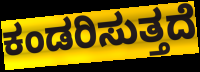
ಕಂಡರಿಸುತ್ತದೆ